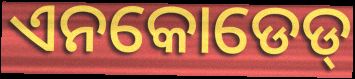
ଏନକୋଡେଡ୍